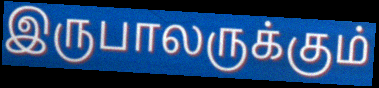
இருபாலருக்கும்